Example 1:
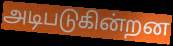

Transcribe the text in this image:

அடிபடுகின்றன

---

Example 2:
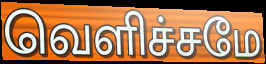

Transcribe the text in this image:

வெளிச்சமே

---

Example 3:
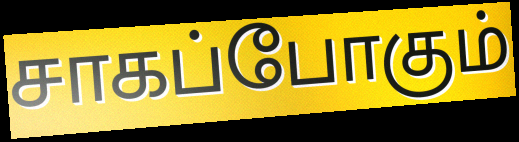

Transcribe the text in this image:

சாகப்போகும்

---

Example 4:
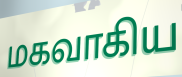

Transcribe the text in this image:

மகவாகிய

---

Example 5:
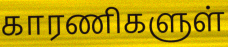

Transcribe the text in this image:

காரணிகளுள்